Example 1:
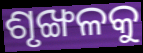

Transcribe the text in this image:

ଶୃଙ୍ଖଳକୁ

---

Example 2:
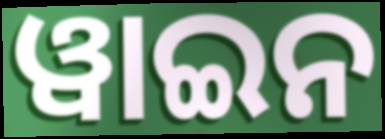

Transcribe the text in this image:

ୱାଇନ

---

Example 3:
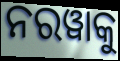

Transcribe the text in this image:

ନରୱାକୁ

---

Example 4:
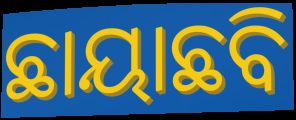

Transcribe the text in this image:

ଛାୟାଛବି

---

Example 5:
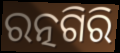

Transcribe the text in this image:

ରତ୍ନଗିରି